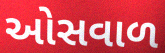
ઓસવાળ